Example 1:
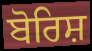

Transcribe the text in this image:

ਬੋਰਿਸ਼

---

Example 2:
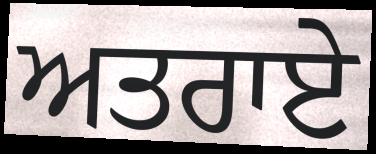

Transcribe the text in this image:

ਅਤਰਾਏ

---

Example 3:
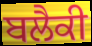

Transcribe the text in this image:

ਬਲੈਕੀ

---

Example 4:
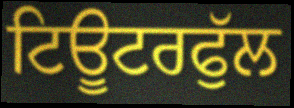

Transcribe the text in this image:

ਟਿਊਟਰਫੁੱਲ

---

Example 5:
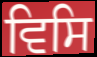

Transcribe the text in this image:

ਵਿਸਿ